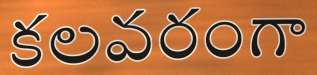
కలవరంగా